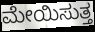
ಮೇಯಿಸುತ್ತ